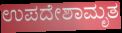
ಉಪದೇಶಾಮೃತ